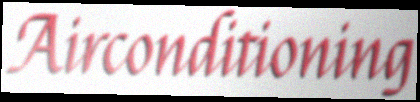
Airconditioning